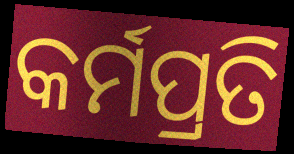
କର୍ମପ୍ରତି